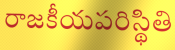
రాజకీయపరిస్థితి